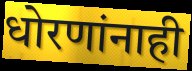
धोरणांनाही